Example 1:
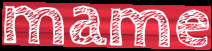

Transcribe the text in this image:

mame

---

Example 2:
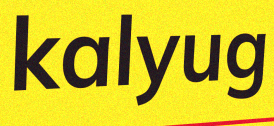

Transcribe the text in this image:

kalyug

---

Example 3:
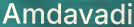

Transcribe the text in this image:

Amdavadi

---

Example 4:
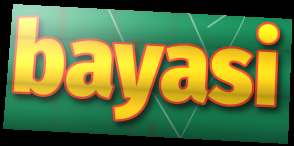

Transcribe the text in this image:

bayasi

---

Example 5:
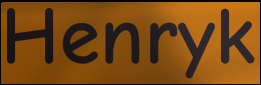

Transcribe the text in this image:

Henryk